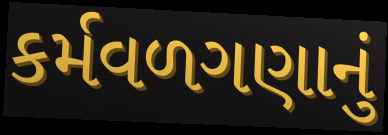
કર્મવળગણાનું